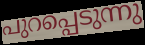
പുറപ്പെടുന്നു